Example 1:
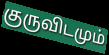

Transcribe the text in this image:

குருவிடமும்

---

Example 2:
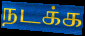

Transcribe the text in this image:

நடக்க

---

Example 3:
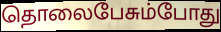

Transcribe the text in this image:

தொலைபேசும்போது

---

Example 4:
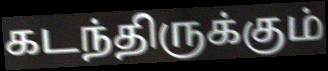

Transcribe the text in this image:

கடந்திருக்கும்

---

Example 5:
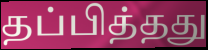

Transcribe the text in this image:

தப்பித்தது